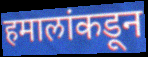
हमालांकडून